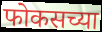
फोकसच्या